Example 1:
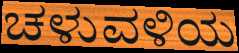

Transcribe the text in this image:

ಚಳುವಳಿಯ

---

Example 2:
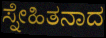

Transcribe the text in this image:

ಸ್ನೇಹಿತನಾದ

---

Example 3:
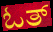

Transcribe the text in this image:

ಓತ್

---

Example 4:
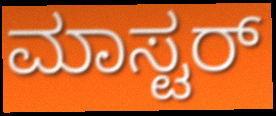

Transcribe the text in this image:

ಮಾಸ್ಟರ್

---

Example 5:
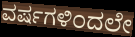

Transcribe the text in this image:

ವರ್ಷಗಳಿಂದಲೇ